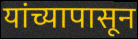
यांच्यापासून